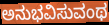
ಅನುಭವಿಸುವಂಥ